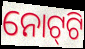
ନୋଟ୍‌ଟି